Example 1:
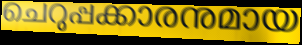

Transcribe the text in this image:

ചെറുപ്പക്കാരനുമായ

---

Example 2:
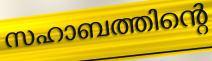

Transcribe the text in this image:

സഹാബത്തിന്റെ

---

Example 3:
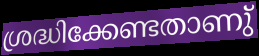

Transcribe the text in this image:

ശ്രദ്ധിക്കേണ്ടതാണു്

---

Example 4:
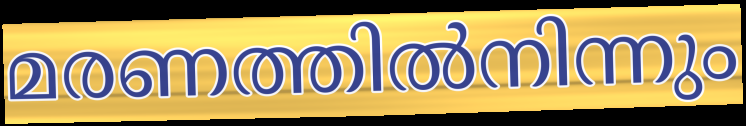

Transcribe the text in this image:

മരണത്തിൽനിന്നും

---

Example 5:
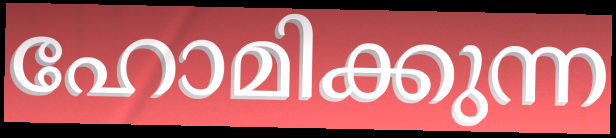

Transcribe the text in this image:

ഹോമിക്കുന്ന